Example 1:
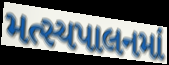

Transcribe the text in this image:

મત્સ્યપાલનમાં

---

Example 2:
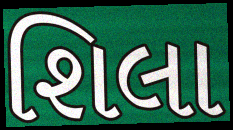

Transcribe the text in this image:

શિલા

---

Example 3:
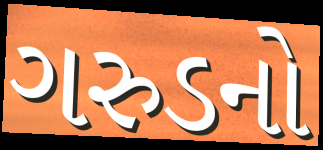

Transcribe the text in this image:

ગરુડનો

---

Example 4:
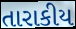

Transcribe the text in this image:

તારાકીય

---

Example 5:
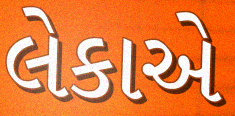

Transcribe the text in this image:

લેકાએ